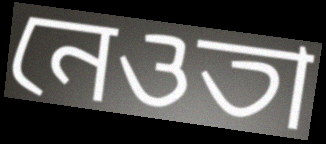
নেওতা